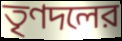
তৃণদলের